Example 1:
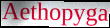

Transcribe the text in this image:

Aethopyga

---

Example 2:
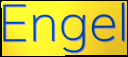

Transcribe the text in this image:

Engel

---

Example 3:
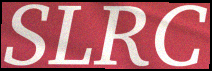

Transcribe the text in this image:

SLRC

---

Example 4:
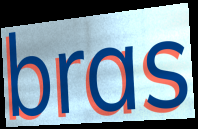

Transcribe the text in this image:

bras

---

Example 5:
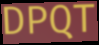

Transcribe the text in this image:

DPQT